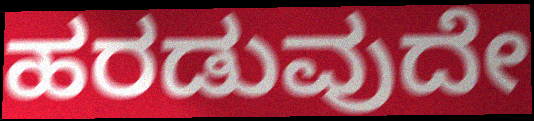
ಹರಡುವುದೇ